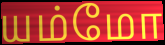
யம்மோ